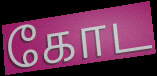
கோட